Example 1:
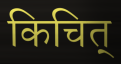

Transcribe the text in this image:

किचित्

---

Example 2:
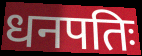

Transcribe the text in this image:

धनपतिः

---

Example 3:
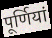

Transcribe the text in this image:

पूर्णियां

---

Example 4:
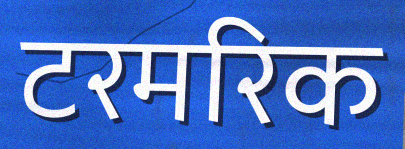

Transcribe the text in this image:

टरमरिक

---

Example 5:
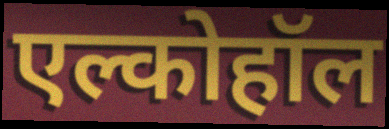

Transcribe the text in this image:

एल्कोहॉल